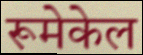
रूमेकेल